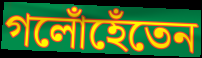
গলোঁহেঁতেন